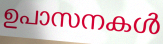
ഉപാസനകൾ